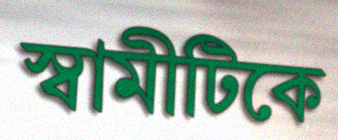
স্বামীটিকে